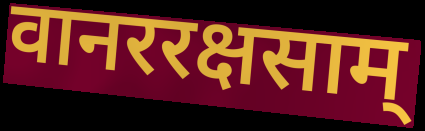
वानररक्षसाम्